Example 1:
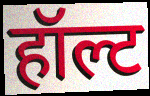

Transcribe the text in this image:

हॉल्ट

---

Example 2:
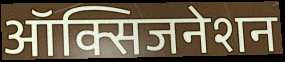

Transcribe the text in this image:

ऑक्सिजनेशन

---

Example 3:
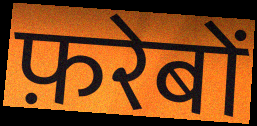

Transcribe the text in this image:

फ़रेबों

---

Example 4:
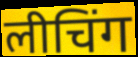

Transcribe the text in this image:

लीचिंग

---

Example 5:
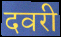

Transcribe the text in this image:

दवरी